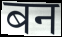
बन